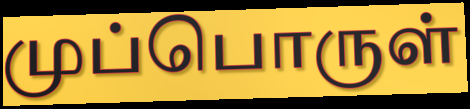
முப்பொருள்